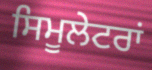
ਸਿਮੂਲੇਟਰਾਂ